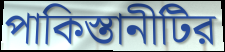
পাকিস্তানীটির